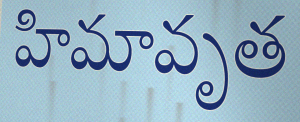
హిమావృత